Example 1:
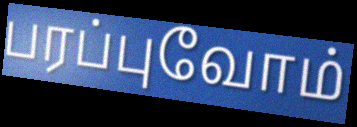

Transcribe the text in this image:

பரப்புவோம்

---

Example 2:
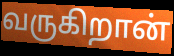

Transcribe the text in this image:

வருகிறான்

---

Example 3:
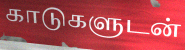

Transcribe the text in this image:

காடுகளுடன்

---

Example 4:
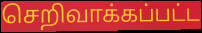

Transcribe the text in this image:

செறிவாக்கப்பட்ட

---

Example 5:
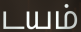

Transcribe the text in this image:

டயம்